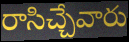
రాసిచ్చేవారు